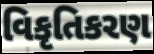
વિકૃતિકરણ